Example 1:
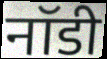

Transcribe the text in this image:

नॉडी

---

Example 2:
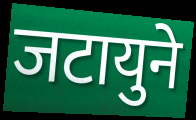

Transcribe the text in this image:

जटायुने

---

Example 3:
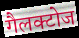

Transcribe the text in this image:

गैलक्टोज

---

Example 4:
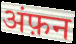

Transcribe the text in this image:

अंफ़न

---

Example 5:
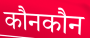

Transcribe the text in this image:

कौनकौन